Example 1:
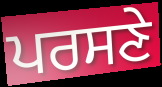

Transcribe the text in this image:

ਪਰਸਣੇ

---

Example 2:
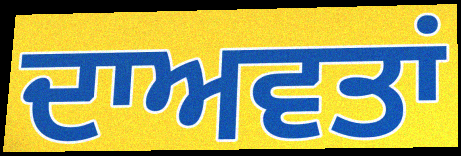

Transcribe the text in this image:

ਦਾਅਵਤਾਂ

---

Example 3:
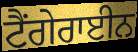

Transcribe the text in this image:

ਟੈਂਗੇਰਾਈਨ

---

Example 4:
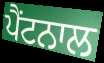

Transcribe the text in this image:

ਪੈਂਟਨਾਲ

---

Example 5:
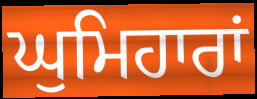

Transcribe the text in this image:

ਘੁਮਿਹਾਰਾਂ